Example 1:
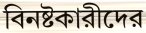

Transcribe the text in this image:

বিনষ্টকারীদের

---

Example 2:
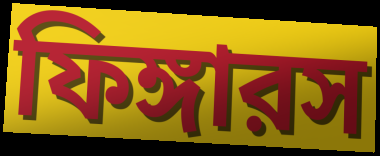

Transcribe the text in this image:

ফিঙ্গারস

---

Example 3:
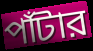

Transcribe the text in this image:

পাঁটার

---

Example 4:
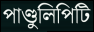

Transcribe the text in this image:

পাণ্ডুলিপিটি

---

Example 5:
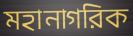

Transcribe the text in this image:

মহানাগরিক